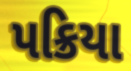
પક્રિયા